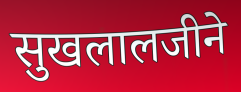
सुखलालजीने